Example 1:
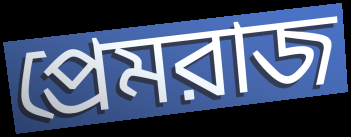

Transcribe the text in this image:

প্রেমরাজ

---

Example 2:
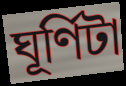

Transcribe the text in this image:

ঘূর্ণিটা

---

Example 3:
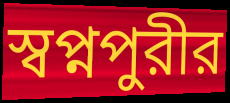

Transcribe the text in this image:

স্বপ্নপুরীর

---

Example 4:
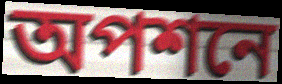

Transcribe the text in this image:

অপশনে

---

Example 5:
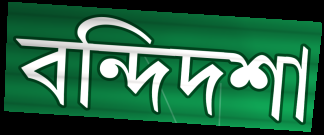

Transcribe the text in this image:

বন্দিদশা